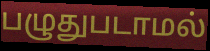
பழுதுபடாமல்